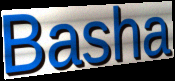
Basha